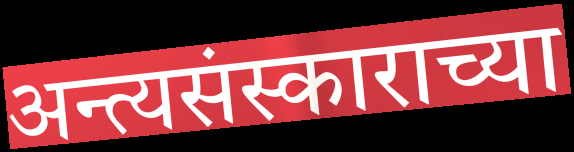
अन्त्यसंस्काराच्या